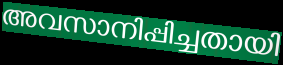
അവസാനിപ്പിച്ചതായി